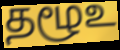
தழூஉ